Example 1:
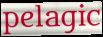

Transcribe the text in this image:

pelagic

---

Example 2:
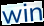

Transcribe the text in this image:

win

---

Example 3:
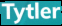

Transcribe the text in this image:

Tytler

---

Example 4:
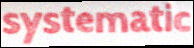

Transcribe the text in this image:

systematic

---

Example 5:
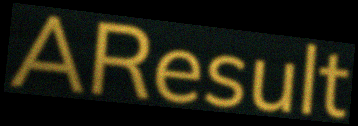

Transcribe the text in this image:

AResult